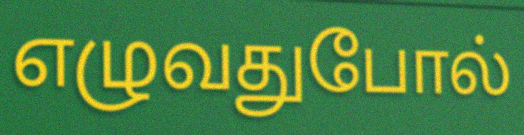
எழுவதுபோல்